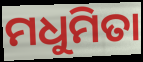
ମଧୁମିତା